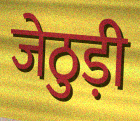
जेठुड़ी